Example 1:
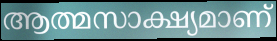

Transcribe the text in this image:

ആത്മസാക്ഷ്യമാണ്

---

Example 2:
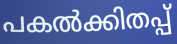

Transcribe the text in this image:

പകൽക്കിതപ്പ്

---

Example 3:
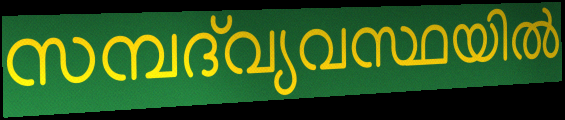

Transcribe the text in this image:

സമ്പദ്‌വ്യവസ്ഥയിൽ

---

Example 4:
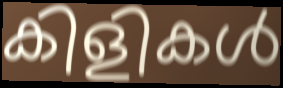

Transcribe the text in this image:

കിളികൾ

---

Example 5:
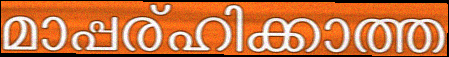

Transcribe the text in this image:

മാപ്പര്ഹിക്കാത്ത